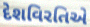
દેશવિરતિએ